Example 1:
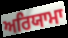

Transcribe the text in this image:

ਅਰਿਯਾਮਾ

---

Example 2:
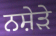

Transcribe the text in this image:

ਨਸ਼ੇੜੇ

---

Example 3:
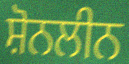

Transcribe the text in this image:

ਸ਼ੋਨਲੀਨ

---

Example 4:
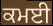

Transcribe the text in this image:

ਕਮਈ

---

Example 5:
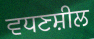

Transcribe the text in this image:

ਵਧਣਸ਼ੀਲ